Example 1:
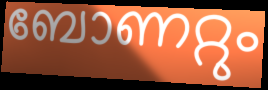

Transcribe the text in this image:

ബോണറ്റും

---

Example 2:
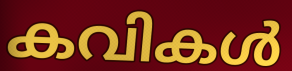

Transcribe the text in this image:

കവികൾ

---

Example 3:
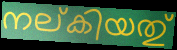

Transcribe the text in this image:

നല്കിയതു്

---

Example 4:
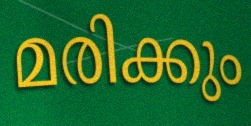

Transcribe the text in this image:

മരിക്കും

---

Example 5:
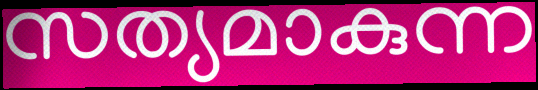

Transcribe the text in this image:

സത്യമാകുന്ന